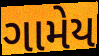
ગામેય